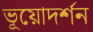
ভূয়োদর্শন